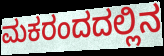
ಮಕರಂದದಲ್ಲಿನ